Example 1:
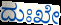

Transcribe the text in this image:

ದುಃಖೇ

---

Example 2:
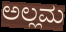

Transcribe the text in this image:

ಅಲ್ಲಮ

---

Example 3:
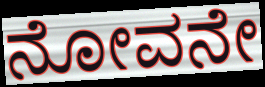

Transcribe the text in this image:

ನೋವನೇ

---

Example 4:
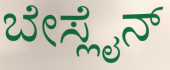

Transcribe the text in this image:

ಬೇಸ್ಲೈನ್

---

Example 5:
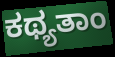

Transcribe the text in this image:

ಕಥ್ಯತಾಂ